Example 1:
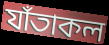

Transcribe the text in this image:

যাঁতাকল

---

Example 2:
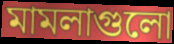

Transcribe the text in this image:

মামলাগুলো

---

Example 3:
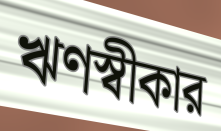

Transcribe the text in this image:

ঋণস্বীকার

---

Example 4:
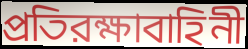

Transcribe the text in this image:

প্রতিরক্ষাবাহিনী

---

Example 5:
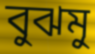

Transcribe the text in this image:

বুঝমু